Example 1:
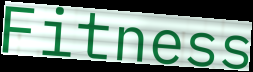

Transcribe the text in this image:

Fitness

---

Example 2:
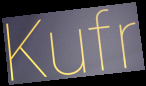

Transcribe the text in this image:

Kufr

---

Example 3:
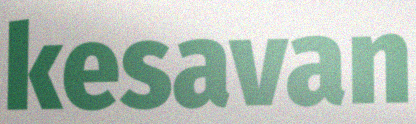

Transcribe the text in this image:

kesavan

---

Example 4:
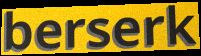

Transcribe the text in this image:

berserk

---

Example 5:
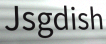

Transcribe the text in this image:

Jsgdish